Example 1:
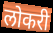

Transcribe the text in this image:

लोकरी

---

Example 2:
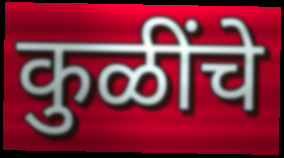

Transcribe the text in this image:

कुळींचे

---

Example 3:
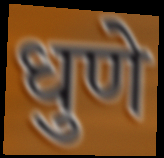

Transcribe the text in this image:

धुणे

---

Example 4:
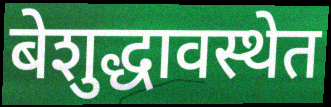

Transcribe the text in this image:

बेशुद्धावस्थेत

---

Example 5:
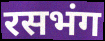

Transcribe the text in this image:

रसभंग